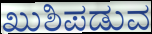
ಖುಶಿಪಡುವ